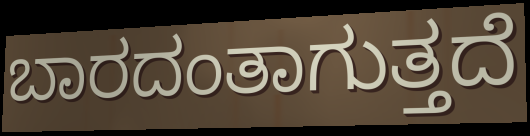
ಬಾರದಂತಾಗುತ್ತದೆ